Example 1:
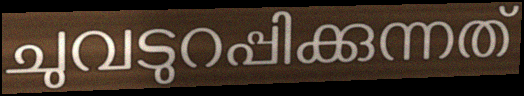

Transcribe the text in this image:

ചുവടുറപ്പിക്കുന്നത്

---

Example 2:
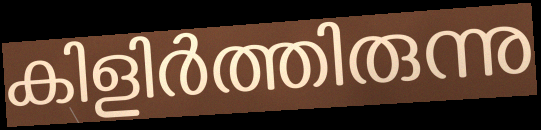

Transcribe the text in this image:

കിളിർത്തിരുന്നു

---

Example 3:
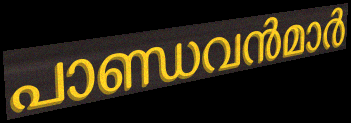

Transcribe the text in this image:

പാണ്ഡവൻമാർ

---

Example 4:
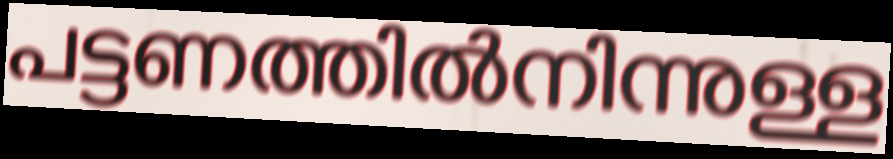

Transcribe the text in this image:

പട്ടണത്തിൽനിന്നുള്ള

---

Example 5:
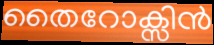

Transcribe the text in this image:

തൈറോക്സിൻ